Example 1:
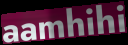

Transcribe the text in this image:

aamhihi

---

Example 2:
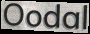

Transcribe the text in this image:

Oodal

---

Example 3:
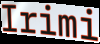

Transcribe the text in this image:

Irimi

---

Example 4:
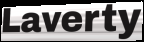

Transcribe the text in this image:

Laverty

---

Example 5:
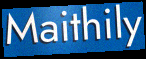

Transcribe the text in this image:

Maithily